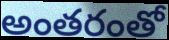
అంతరంతో